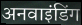
अनवाइंडिंग